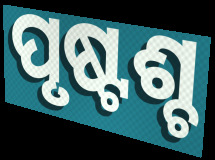
ପୃଷ୍ଟଶ୍ଚ